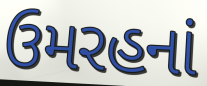
ઉમરહનાં